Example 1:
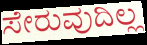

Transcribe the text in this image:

ಸೇರುವುದಿಲ್ಲ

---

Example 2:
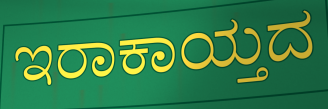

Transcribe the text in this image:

ಇರಾಕಾಯ್ತದ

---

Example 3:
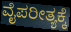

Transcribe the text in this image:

ವೈಪರೀತ್ಯಕ್ಕೆ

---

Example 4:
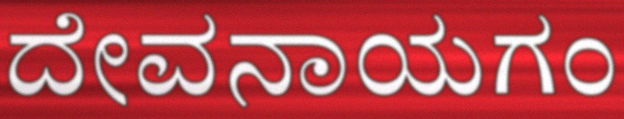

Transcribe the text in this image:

ದೇವನಾಯಗಂ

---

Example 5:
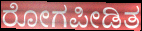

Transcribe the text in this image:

ರೋಗಪೀಡಿತ